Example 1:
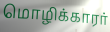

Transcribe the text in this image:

மொழிக்காரர்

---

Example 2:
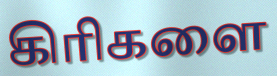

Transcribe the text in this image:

கிரிகளை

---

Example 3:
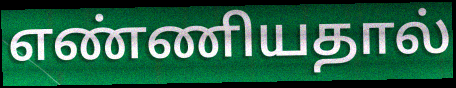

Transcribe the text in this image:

எண்ணியதால்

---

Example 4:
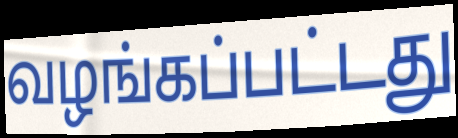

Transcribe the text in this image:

வழங்கப்பட்டது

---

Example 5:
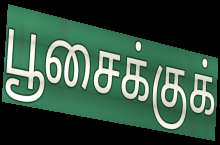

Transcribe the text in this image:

பூசைக்குக்